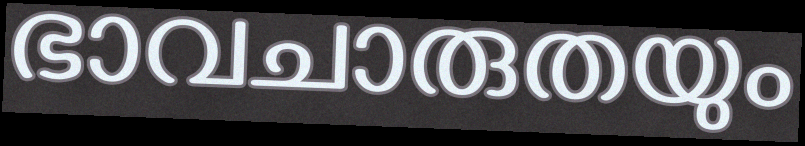
ഭാവചാരുതയും